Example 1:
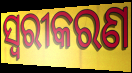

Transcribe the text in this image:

ସ୍ୱରୀକରଣ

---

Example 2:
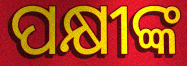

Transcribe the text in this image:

ପକ୍ଷୀଙ୍କ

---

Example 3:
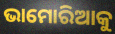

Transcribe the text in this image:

ଭାମୋରିଆକୁ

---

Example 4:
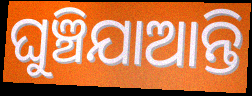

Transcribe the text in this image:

ଘୁଞ୍ଚିଯାଆନ୍ତି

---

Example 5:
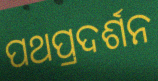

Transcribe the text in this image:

ପଥପ୍ରଦର୍ଶନ